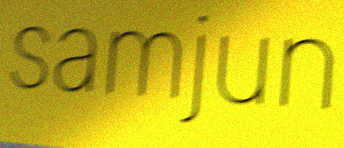
samjun